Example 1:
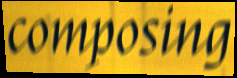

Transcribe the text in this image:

composing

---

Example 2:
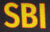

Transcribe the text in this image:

SBI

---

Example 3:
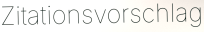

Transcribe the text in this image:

Zitationsvorschlag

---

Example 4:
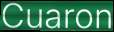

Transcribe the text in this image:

Cuaron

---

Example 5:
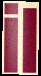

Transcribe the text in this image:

il